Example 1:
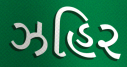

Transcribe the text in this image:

ઝહિર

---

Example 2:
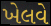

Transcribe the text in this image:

ખેલવે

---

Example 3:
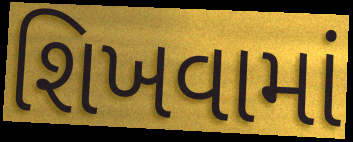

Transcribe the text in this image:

શિખવામાં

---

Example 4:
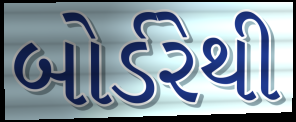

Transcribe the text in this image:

બોર્ડરેથી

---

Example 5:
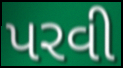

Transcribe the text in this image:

પરવી